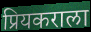
प्रियकराला